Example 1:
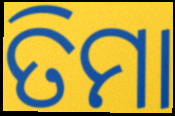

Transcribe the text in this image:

ତିମା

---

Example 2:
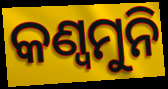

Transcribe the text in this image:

କଣ୍ୱମୁନି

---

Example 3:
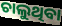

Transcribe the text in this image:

ଚାଲୁଥିବା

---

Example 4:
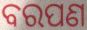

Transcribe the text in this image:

ବରପଣ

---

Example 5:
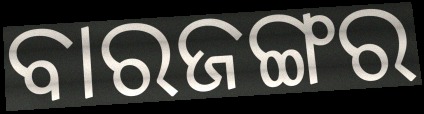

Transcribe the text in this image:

ବାରଜଙ୍ଗର